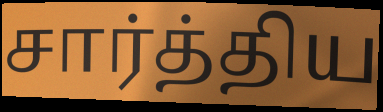
சார்த்திய